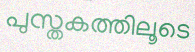
പുസ്തകത്തിലൂടെ